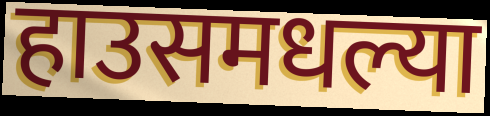
हाउसमधल्या